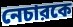
নেচারকে